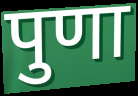
पुणा